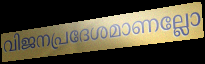
വിജനപ്രദേശമാണല്ലോ